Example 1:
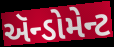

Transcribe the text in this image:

ઍન્ડોમેન્ટ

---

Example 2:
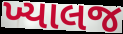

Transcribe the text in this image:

ખ્યાલજ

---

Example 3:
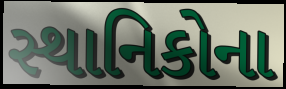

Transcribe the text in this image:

સ્થાનિકોના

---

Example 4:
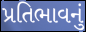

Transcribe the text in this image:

પ્રતિભાવનું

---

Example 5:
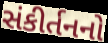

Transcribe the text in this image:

સંકીર્તનનો